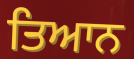
ਤਿਆਨ